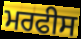
ਮਰਫੀਸ